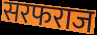
सरफराज